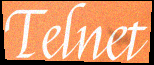
Telnet